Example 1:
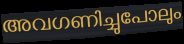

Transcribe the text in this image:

അവഗണിച്ചുപോലും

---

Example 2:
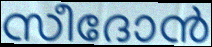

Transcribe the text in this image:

സീദോൻ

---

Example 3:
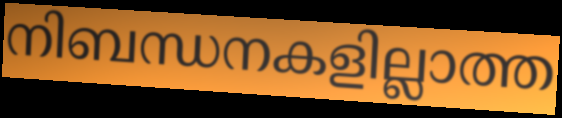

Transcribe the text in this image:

നിബന്ധനകളില്ലാത്ത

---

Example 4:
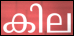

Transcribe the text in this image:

കില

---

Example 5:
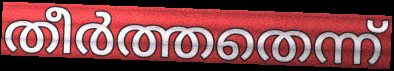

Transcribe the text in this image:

തീർത്തതെന്ന്